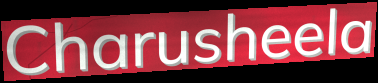
Charusheela